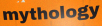
mythology